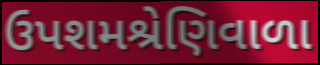
ઉપશમશ્રેણિવાળા